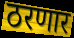
ठरणार